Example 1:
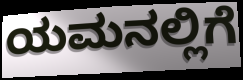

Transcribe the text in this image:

ಯಮನಲ್ಲಿಗೆ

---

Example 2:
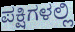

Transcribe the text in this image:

ಪಕ್ಷಿಗಳಲ್ಲಿ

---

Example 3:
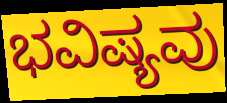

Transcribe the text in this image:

ಭವಿಷ್ಯವು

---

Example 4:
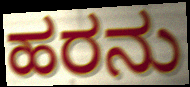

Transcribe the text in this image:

ಹರನು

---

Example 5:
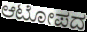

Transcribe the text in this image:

ಆಟೋಪದ